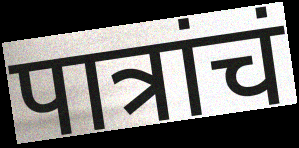
पात्रांचं